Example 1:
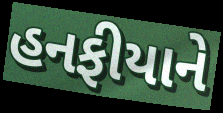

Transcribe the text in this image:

હનફીયાને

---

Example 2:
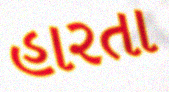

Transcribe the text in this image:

હારતા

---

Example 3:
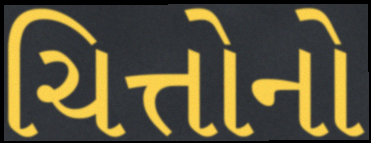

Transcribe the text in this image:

ચિત્તોનો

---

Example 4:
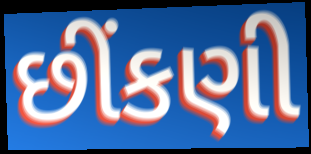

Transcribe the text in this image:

છીંકણી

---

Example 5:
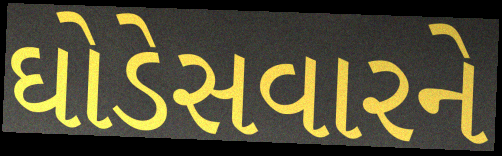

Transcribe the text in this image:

ઘોડેસવારને